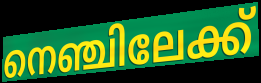
നെഞ്ചിലേക്ക്